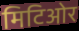
मिटिओर